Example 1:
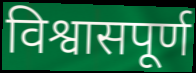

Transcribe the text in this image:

विश्वासपूर्ण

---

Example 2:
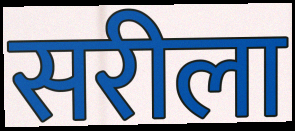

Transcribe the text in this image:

सरीला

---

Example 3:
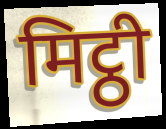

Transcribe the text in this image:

मिट्ठी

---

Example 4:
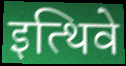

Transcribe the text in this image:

इत्थिवे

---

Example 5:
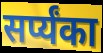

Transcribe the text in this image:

सर्प्यंका